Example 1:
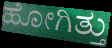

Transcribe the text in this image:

ಹೋಗಿತ್ತು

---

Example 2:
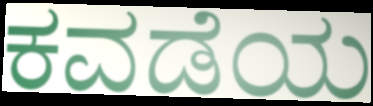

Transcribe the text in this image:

ಕವಡೆಯ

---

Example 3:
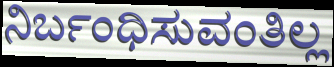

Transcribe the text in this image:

ನಿರ್ಬಂಧಿಸುವಂತಿಲ್ಲ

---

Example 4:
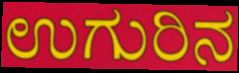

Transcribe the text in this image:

ಉಗುರಿನ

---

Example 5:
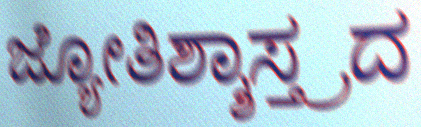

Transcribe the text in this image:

ಜ್ಯೋತಿಶ್ಶಾಸ್ತ್ರದ